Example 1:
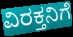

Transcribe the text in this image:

ವಿರಕ್ತನಿಗೆ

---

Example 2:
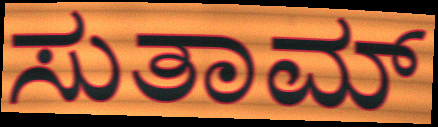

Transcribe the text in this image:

ಸುತಾಮ್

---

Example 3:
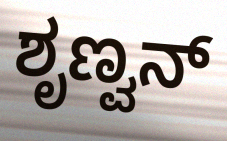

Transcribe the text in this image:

ಶೃಣ್ವನ್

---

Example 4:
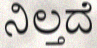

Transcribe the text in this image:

ನಿಲ್ತದೆ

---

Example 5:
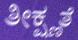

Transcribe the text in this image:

ತೀಕ್ಷ್ಣತೆ